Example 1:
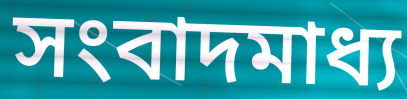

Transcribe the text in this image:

সংবাদমাধ্য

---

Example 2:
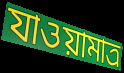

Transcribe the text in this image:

যাওয়ামাত্র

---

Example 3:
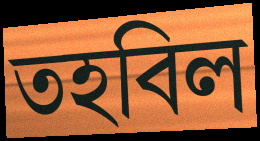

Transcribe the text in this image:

তহবিল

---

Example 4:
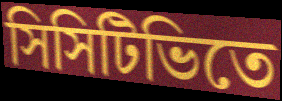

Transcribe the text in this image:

সিসিটিভিতে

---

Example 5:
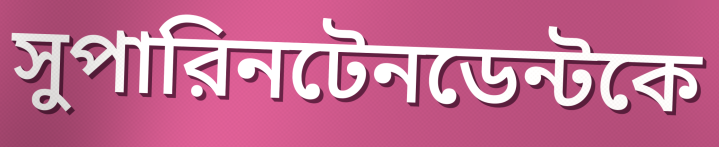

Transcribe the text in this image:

সুপারিনটেনডেন্টকে